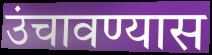
उंचावण्यास